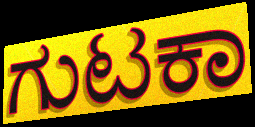
ಗುಟಕಾ